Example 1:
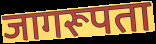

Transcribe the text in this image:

जागरूपता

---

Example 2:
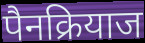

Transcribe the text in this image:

पैनक्रियाज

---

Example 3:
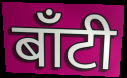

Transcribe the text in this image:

बाँटी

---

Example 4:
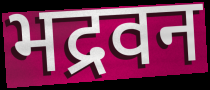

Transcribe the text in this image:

भद्रवन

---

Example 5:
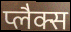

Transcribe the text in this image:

प्लैक्स